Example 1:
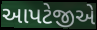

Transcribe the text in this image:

આપટેજીએ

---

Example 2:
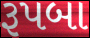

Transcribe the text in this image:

રૂપબા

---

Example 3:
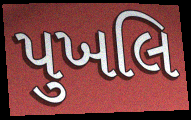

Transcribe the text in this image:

પુખલિ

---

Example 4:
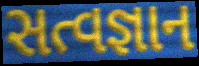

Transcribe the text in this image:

સત્વજ્ઞાન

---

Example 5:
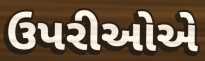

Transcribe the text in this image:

ઉપરીઓએ